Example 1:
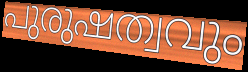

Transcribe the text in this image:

പുരുഷത്വവും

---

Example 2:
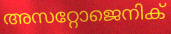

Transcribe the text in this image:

അസറ്റോജെനിക്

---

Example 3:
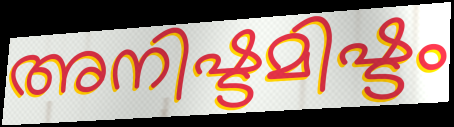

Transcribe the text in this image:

അനിഷ്ടമിഷ്ടം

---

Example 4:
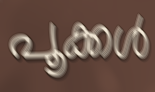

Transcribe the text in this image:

പൂക്കൾ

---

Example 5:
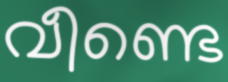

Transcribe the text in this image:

വീണ്ടെ